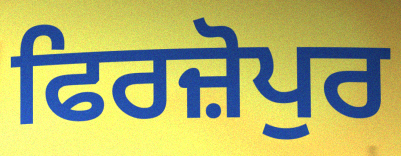
ਫਿਰਜ਼ੋਪੁਰ